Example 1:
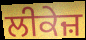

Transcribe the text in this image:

ਲੀਕੇਜ਼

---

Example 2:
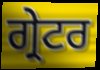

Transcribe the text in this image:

ਗ੍ਰੇਟਰ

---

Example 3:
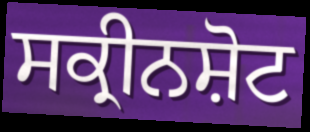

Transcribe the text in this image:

ਸਕ੍ਰੀਨਸ਼ੋਟ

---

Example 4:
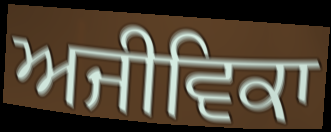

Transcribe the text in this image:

ਅਜੀਵਿਕਾ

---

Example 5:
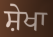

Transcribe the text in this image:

ਸ਼ੇਖਾ